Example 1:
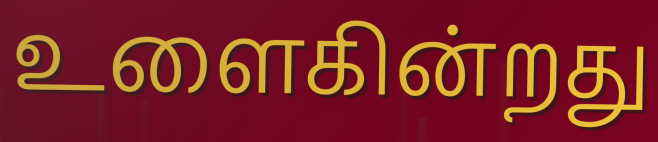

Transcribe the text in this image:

உளைகின்றது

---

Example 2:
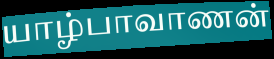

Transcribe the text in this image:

யாழ்பாவாணன்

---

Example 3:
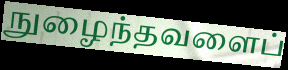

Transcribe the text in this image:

நுழைந்தவளைப்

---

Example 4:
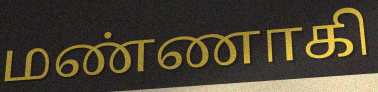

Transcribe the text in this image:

மண்ணாகி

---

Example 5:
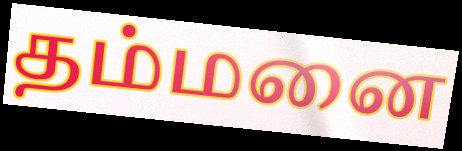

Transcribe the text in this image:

தம்மனை